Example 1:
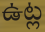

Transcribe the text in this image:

ఉట్ల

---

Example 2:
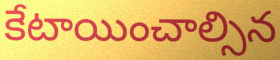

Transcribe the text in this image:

కేటాయించాల్సిన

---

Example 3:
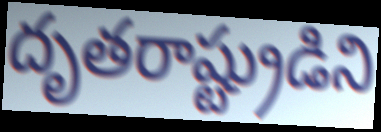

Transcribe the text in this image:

దృతరాష్ట్రుడిని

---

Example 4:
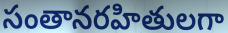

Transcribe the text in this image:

సంతానరహితులగా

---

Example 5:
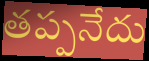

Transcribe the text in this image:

తప్పనేదు